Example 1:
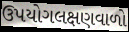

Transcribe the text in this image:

ઉપયોગલક્ષણવાળો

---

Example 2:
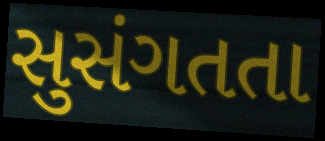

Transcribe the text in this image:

સુસંગતતા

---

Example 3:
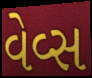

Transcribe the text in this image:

વેવ્સ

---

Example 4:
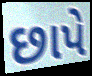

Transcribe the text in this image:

છાપે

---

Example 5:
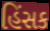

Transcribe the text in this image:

હિંસક